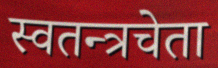
स्वतन्त्रचेता